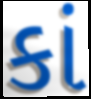
કાં